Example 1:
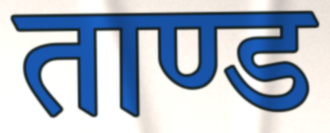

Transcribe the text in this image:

ताण्ड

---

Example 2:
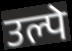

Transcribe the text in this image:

उल्पे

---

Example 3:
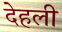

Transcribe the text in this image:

देहली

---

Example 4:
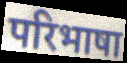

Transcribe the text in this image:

परिभाषा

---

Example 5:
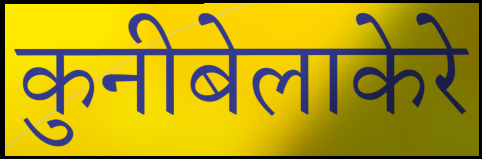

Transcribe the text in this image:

कुनीबेलाकेरे